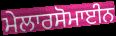
ਮੇਲਾਰਸੋਮਾਈਨ